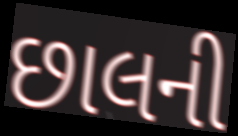
છાલની